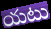
యటు